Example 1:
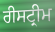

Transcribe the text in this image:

ਰੀਸਟ੍ਰੀਮ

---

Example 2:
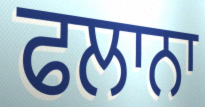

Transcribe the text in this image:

ਫਲਾਨਾ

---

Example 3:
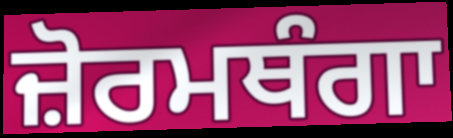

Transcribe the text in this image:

ਜ਼ੋਰਮਥੰਗਾ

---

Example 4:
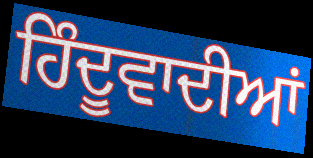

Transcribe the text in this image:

ਹਿੰਦੂਵਾਦੀਆਂ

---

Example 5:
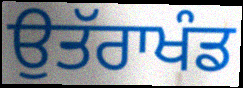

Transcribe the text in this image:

ਉਤੱਰਾਖੰਡ